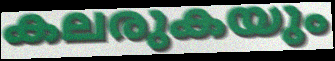
കലരുകയും